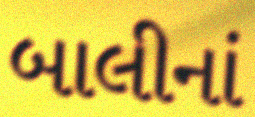
બાલીનાં